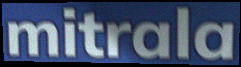
mitrala